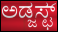
ಅಡ್ಜಸ್ಟ್